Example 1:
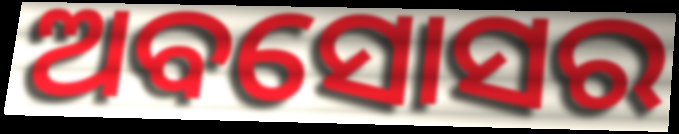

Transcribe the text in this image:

ଅବସୋସର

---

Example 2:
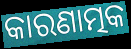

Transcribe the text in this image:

କାରଣାତ୍ମକ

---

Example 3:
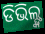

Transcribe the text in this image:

ଡିଭିଲ୍ଙ୍କ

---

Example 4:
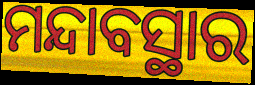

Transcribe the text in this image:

ମନ୍ଦାବସ୍ଥାର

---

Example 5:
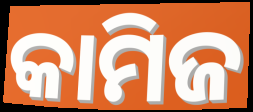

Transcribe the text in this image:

କାମିଜ